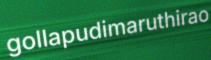
gollapudimaruthirao